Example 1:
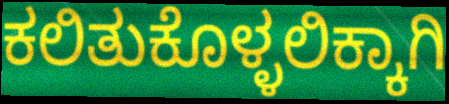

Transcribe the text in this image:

ಕಲಿತುಕೊಳ್ಳಲಿಕ್ಕಾಗಿ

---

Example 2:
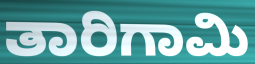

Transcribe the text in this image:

ತಾರಿಗಾಮಿ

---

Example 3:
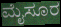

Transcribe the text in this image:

ಮೈಸೂರ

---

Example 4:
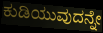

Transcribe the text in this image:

ಕುಡಿಯುವುದನ್ನೇ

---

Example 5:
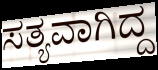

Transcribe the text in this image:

ಸತ್ಯವಾಗಿದ್ದ